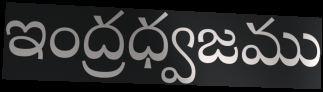
ఇంద్రధ్వజము